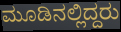
ಮೂಡಿನಲ್ಲಿದ್ದರು